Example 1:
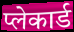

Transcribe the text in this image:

प्‍लेकार्ड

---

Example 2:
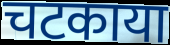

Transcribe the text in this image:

चटकाया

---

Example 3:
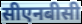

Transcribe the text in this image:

सीएनबीसी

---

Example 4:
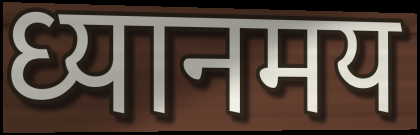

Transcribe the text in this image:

ध्यानमय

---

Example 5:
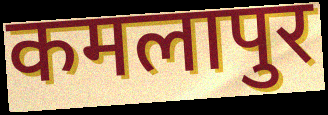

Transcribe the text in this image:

कमलापुर